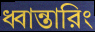
ধ্বান্তারিং